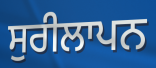
ਸੁਰੀਲਾਪਨ